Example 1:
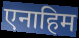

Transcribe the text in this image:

एनाहिम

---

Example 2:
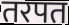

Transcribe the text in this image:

तरपत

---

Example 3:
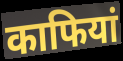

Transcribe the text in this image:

काफियां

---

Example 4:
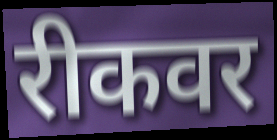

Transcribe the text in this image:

रीकवर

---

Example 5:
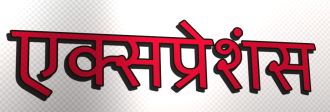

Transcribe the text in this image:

एक्सप्रेशंस